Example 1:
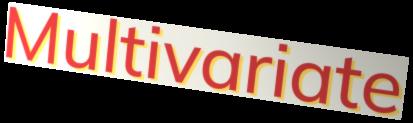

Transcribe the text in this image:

Multivariate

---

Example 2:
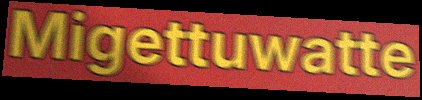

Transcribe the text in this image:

Migettuwatte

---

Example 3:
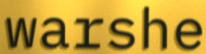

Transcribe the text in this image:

warshe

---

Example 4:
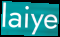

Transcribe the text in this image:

laiye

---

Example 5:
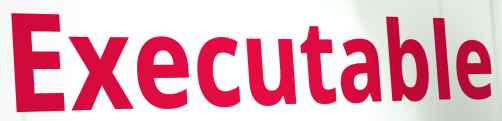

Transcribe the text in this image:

Executable